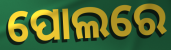
ପୋଲରେ